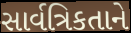
સાર્વત્રિકતાને